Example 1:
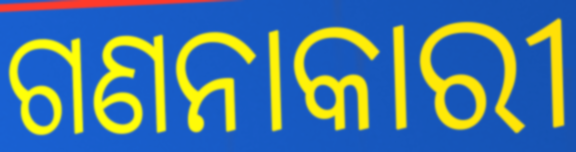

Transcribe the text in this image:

ଗଣନାକାରୀ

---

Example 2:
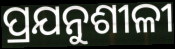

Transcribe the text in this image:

ପ୍ରଯନୁଶୀଳୀ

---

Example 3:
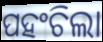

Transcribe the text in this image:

ପହଂଚିଲା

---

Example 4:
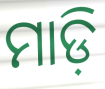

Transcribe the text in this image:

ମାଡ଼ି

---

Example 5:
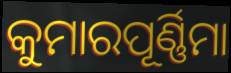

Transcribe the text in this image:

କୁମାରପୂର୍ଣ୍ଣିମା